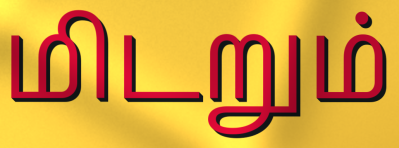
மிடறும்